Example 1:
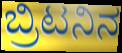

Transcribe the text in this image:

ಬ್ರಿಟನಿನ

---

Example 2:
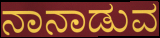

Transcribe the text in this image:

ನಾನಾಡುವ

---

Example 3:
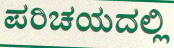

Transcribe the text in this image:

ಪರಿಚಯದಲ್ಲಿ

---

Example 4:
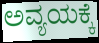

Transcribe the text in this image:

ಅವ್ಯಯಕ್ಕೆ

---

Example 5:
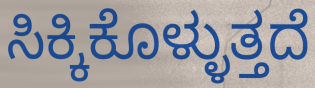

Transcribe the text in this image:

ಸಿಕ್ಕಿಕೊಳ್ಳುತ್ತದೆ